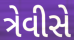
ત્રેવીસે